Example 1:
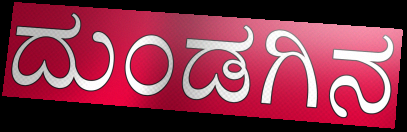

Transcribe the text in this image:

ದುಂಡಗಿನ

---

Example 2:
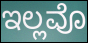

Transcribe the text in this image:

ಇಲ್ಲವೊ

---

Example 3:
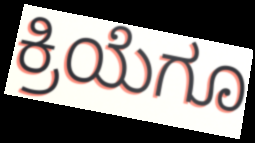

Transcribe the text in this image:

ಕ್ರಿಯೆಗೂ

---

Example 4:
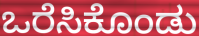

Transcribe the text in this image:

ಒರೆಸಿಕೊಂಡು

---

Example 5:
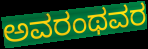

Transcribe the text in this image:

ಅವರಂಥವರ